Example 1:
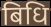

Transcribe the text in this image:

बिधि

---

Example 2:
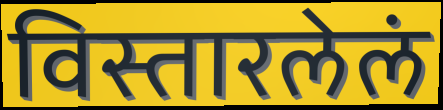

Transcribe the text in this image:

विस्तारलेलं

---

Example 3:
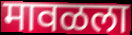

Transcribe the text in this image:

मावळला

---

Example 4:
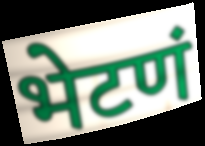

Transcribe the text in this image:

भेटणं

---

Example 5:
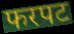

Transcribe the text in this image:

फरपट